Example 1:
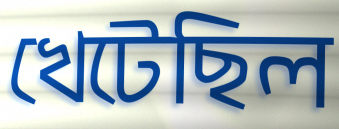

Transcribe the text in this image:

খেটেছিল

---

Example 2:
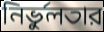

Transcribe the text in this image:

নির্ভুলতার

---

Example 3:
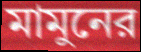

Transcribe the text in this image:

মামুনের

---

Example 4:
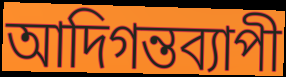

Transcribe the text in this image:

আদিগন্তব্যাপী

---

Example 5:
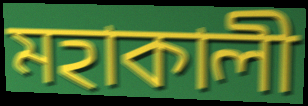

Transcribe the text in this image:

মহাকালী